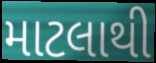
માટલાથી